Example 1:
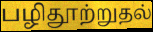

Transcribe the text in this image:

பழிதூற்றுதல்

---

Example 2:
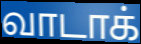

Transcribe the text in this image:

வாடாக்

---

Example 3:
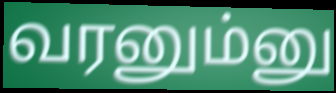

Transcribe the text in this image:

வரனும்னு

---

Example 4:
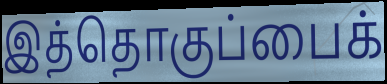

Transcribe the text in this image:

இத்தொகுப்பைக்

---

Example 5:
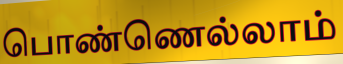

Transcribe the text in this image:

பொண்ணெல்லாம்